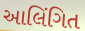
આલિંગિત